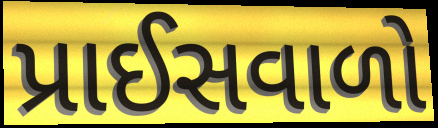
પ્રાઈસવાળો